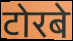
टोरबे